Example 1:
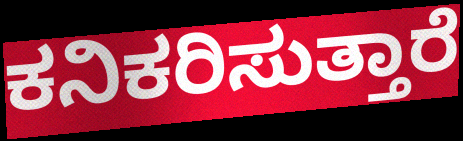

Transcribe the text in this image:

ಕನಿಕರಿಸುತ್ತಾರೆ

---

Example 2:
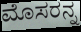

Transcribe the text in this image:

ಮೊಸರನ್ನ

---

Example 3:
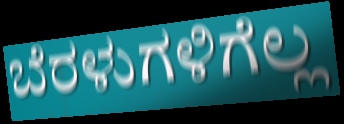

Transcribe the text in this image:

ಬೆರಳುಗಳಿಗೆಲ್ಲ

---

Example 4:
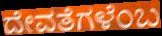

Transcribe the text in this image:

ದೇವತೆಗಳೆಂಬ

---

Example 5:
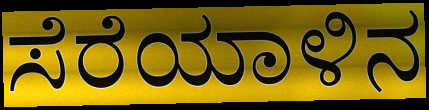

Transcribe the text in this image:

ಸೆರೆಯಾಳಿನ